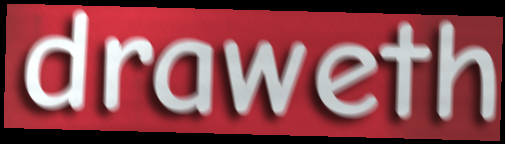
draweth